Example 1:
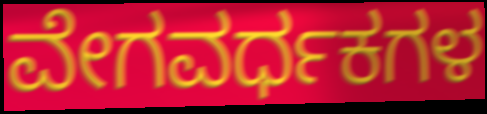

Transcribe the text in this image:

ವೇಗವರ್ಧಕಗಳ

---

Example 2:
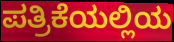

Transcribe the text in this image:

ಪತ್ರಿಕೆಯಲ್ಲಿಯ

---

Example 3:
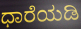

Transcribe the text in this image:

ಧಾರೆಯಡಿ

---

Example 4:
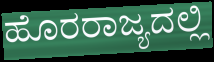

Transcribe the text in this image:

ಹೊರರಾಜ್ಯದಲ್ಲಿ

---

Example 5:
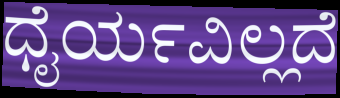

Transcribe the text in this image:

ಧೈರ್ಯವಿಲ್ಲದೆ